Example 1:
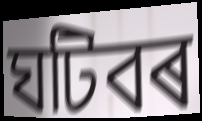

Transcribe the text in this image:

ঘটিবৰ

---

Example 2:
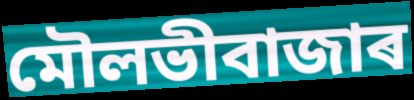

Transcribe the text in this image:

মৌলভীবাজাৰ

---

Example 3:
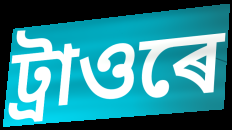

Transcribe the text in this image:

ট্ৰাওৰে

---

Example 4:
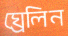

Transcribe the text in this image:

ঘ্ৰেলিন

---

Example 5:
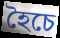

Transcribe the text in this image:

হৈচে